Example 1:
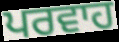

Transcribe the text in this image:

ਪਰਵਾਹ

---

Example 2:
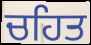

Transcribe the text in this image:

ਚਹਿਤ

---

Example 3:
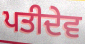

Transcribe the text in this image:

ਪਤੀਦੇਵ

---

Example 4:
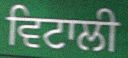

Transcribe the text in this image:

ਵਿਟਾਲੀ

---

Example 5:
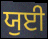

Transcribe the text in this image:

ਯੁਈ